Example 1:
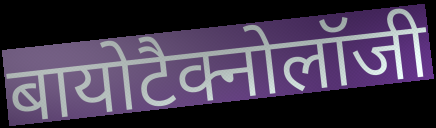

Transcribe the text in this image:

बायोटैक्नोलॉजी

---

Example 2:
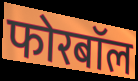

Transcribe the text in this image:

फोरबॉल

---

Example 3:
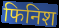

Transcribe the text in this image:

फिनिश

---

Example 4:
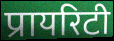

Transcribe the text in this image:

प्रायरिटी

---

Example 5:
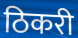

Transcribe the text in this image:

ठिकरी